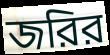
জরির